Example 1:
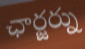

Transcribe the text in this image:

ఛార్జర్ను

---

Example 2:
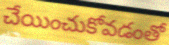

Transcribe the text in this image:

చేయించుకోవడంతో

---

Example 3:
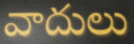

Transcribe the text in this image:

వాదులు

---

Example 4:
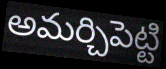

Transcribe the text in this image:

అమర్చిపెట్టి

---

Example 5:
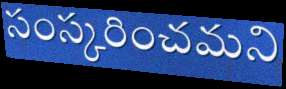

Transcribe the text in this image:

సంస్కరించమని